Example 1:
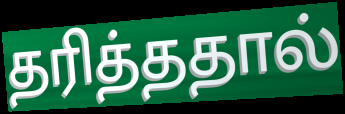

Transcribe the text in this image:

தரித்ததால்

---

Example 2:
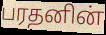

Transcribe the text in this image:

பரதனின்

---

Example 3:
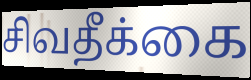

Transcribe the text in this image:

சிவதீக்கை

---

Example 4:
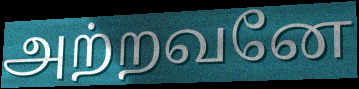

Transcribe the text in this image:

அற்றவனே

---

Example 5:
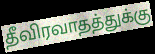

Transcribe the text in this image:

தீவிரவாதத்துக்கு